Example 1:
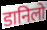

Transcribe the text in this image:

डानिलो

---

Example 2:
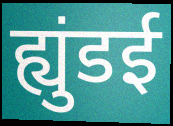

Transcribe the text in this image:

ह्युंडई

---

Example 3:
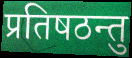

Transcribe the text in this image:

प्रतिषठन्तु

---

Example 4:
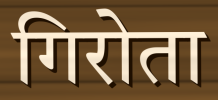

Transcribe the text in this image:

गिरोता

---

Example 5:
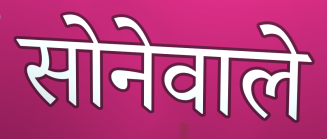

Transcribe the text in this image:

सोनेवाले